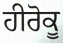
ਹੀਰੋਕੂ